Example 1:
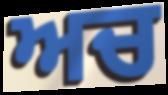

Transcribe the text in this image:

ਅਚ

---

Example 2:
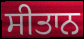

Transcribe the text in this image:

ਸੀਤਾਨ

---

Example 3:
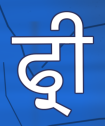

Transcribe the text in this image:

ਫ੍ਰੀ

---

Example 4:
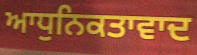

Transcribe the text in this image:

ਆਧੁਨਿਕਤਾਵਾਦ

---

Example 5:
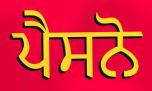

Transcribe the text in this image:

ਪੈਸਨੋ